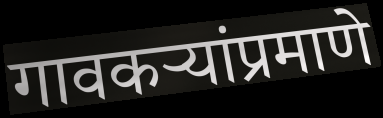
गावकऱ्यांप्रमाणे